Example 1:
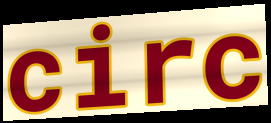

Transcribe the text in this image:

circ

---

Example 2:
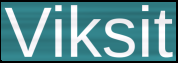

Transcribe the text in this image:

Viksit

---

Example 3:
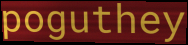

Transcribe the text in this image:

poguthey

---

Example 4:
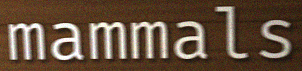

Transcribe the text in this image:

mammals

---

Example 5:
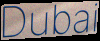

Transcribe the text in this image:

Dubai